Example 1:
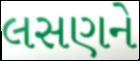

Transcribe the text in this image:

લસણને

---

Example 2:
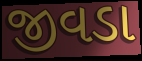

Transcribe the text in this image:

જીવડા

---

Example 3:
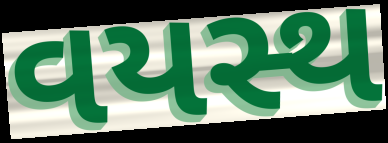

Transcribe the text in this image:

વયસ્થ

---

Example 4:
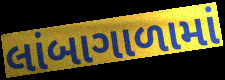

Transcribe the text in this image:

લાંબાગાળામાં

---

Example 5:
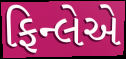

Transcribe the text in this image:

ફિન્લેએ